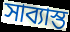
সাব্যাস্ত